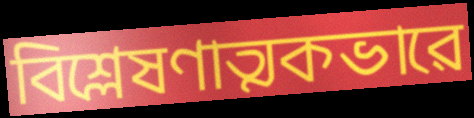
বিশ্লেষণাত্মকভাৱে